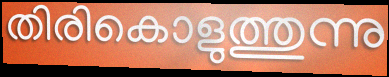
തിരികൊളുത്തുന്നു